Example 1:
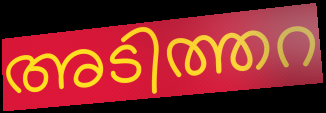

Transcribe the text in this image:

അടിത്തറ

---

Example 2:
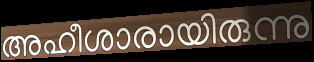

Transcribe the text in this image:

അഹീശാരായിരുന്നു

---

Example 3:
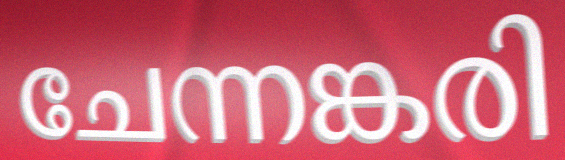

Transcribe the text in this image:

ചേന്നങ്കരി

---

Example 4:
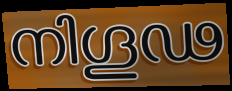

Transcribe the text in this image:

നിഗൂഢ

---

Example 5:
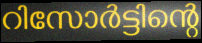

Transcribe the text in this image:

റിസോർട്ടിന്റെ